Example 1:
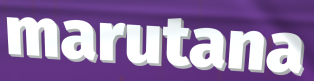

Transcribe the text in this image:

marutana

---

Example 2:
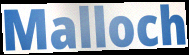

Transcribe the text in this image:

Malloch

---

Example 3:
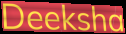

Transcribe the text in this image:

Deeksha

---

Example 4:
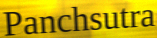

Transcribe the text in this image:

Panchsutra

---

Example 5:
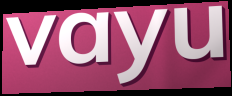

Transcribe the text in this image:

vayu